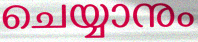
ചെയ്യാനും